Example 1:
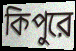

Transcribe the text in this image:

কিপুরে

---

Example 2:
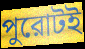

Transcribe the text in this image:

পুরোটই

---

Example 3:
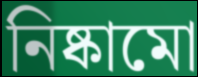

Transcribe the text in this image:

নিষ্কামো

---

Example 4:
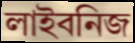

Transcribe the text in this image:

লাইবনিজ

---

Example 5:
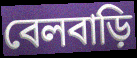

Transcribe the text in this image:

বেলবাড়ি